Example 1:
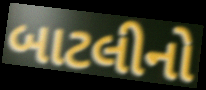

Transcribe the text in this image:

બાટલીનો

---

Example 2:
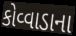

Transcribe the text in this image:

કોવ્વાડાના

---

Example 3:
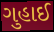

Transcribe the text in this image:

ગુહાઈ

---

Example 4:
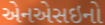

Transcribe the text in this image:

એનએસઇનો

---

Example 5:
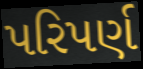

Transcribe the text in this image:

પરિપર્ણ